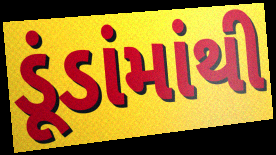
ડૂંડાંમાંથી